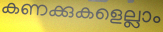
കണക്കുകളെല്ലാം